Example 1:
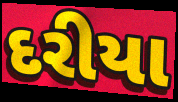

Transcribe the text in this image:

દરીયા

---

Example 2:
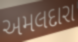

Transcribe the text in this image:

અમલદારા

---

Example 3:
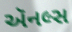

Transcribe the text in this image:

ઍનલ્સ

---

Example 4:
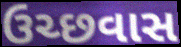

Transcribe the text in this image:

ઉચ્છવાસ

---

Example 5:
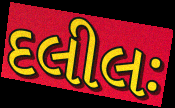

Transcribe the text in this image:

દલીલઃ